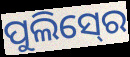
ପୁଲିସ୍‍ରେ